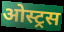
ओस्ट्रस